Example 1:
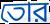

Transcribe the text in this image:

তোর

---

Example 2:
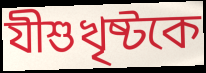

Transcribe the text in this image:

যীশুখৃষ্টকে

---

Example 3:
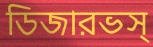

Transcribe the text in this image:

ডিজারভস্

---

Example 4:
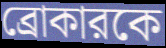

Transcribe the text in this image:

ব্রোকারকে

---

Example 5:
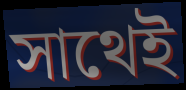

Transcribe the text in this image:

সাথেই